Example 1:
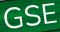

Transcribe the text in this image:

GSE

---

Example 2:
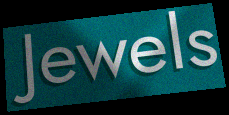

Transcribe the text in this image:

Jewels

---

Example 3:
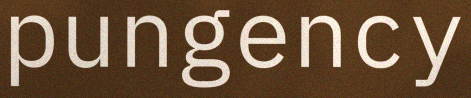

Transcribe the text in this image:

pungency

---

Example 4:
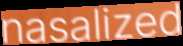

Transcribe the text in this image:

nasalized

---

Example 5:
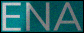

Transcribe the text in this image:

ENA